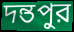
দন্তপুর